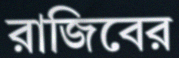
রাজিবের